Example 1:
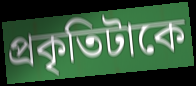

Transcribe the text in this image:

প্রকৃতিটাকে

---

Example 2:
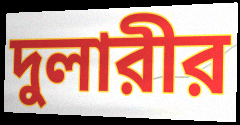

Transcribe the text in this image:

দুলারীর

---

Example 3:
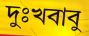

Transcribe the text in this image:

দুঃখবাবু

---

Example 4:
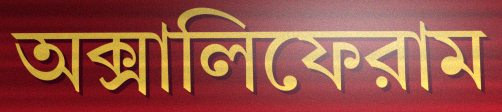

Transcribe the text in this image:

অক্সালিফেরাম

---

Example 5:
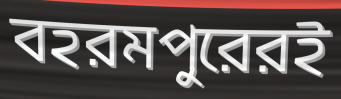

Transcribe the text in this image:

বহরমপুরেরই